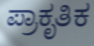
ಪ್ರಾಕೃತಿಕ